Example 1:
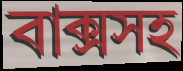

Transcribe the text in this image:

বাক্সসহ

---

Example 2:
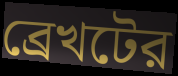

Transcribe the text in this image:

ব্রেখটের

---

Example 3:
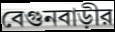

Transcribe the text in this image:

বেগুনবাড়ীর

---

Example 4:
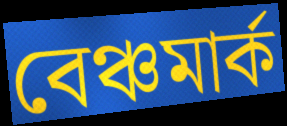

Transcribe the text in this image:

বেঞ্চমার্ক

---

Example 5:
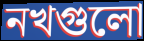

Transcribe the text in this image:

নখগুলো